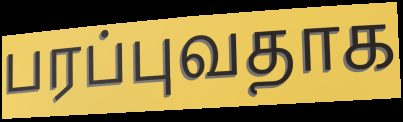
பரப்புவதாக